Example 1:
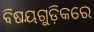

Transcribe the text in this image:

ବିଷୟଗୁଡ଼ିକରେ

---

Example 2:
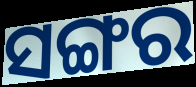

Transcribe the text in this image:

ସଙ୍ଗର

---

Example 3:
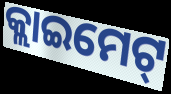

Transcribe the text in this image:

କ୍ଲାଇମେଟ୍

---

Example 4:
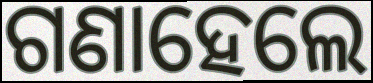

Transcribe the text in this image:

ଗଣାହେଲେ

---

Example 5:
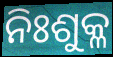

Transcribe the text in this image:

ନିଃଶୁକ୍ଳ